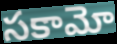
సకామో